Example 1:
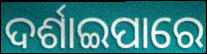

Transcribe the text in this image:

ଦର୍ଶାଇପାରେ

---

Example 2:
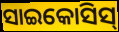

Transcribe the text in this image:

ସାଇକୋସିସ୍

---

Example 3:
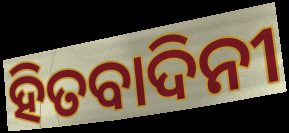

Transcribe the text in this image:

ହିତବାଦିନୀ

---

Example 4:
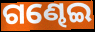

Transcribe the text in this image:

ଗଣ୍ଢେଇ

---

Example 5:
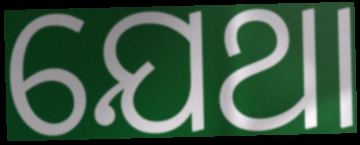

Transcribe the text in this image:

ଯେଥା